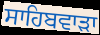
ਸਾਹਿਬਵਾੜਾ